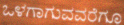
ಒಳಗಾಗುವವರೆಗೂ